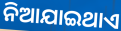
ନିଆଯାଇଥାଏ